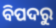
ବିପଦରୁ